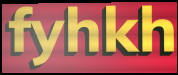
fyhkh